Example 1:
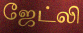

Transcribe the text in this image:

ஜேட்லி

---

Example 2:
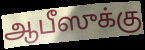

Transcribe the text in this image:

ஆபீஸுக்கு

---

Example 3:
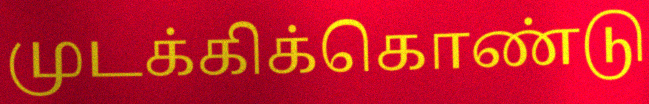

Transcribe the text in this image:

முடக்கிக்கொண்டு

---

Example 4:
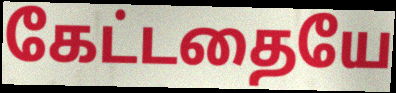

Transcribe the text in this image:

கேட்டதையே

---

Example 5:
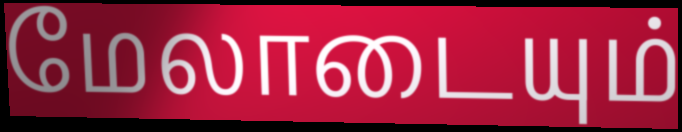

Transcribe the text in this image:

மேலாடையும்